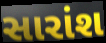
સારાંશ